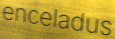
enceladus